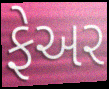
ફેઅર